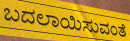
ಬದಲಾಯಿಸುವಂತೆ